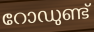
റോഡുണ്ട്